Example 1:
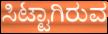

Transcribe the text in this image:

ಸಿಟ್ಟಾಗಿರುವ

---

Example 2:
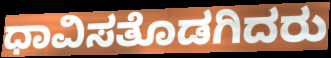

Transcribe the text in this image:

ಧಾವಿಸತೊಡಗಿದರು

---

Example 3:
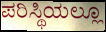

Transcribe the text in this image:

ಪರಿಸ್ಥಿಯಲ್ಲೂ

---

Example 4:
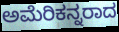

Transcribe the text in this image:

ಅಮೆರಿಕನ್ನರಾದ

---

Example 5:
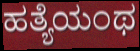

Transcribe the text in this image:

ಹತ್ಯೆಯಂಥ